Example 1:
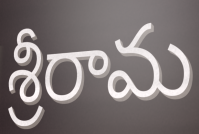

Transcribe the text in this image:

శ్రీరామ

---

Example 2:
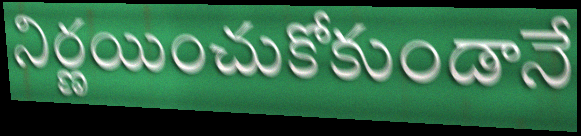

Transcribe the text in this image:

నిర్ణయించుకోకుండానే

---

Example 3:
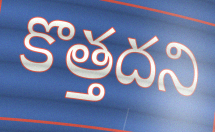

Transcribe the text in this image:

కొత్తదని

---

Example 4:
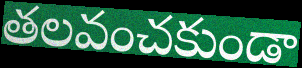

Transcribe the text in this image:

తలవంచకుండా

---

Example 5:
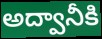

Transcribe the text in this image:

అద్వానీకి